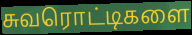
சுவரொட்டிகளை